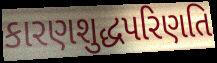
કારણશુદ્ધપરિણતિ